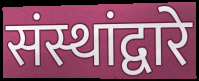
संस्थांद्वारे